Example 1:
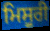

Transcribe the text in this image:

ਮਿਸੂਰੀ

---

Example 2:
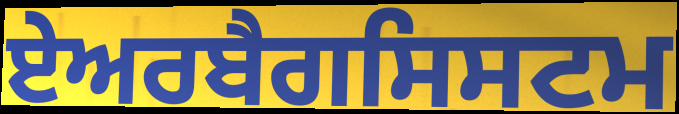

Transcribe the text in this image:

ਏਅਰਬੈਗਸਿਸਟਮ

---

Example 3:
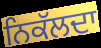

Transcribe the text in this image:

ਨਿਕੱਲਦਾ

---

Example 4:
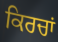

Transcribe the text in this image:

ਕਿਰਚਾਂ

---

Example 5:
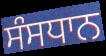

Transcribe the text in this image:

ਸੰਸਧਾਨ